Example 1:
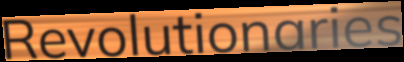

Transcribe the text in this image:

Revolutionaries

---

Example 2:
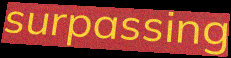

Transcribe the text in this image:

surpassing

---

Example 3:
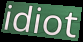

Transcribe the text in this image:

idiot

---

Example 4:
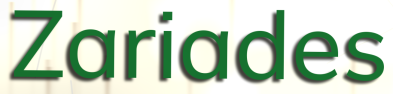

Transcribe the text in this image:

Zariades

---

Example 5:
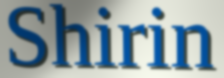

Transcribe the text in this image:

Shirin